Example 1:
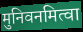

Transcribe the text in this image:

मुनिवनमित्वा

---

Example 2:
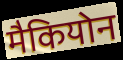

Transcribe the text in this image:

मैकियोन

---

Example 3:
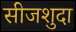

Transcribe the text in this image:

सीजशुदा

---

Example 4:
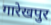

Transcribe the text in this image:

गारेखपुर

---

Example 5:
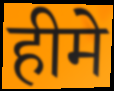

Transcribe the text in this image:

हीमे